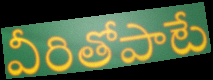
వీరితోపాటే